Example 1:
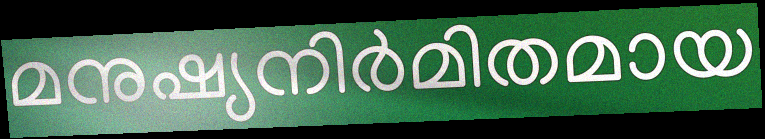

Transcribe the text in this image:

മനുഷ്യനിർമിതമായ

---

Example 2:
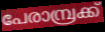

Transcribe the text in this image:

പേരാമ്പ്രക്ക്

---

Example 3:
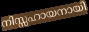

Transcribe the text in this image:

നിസ്സഹായനായി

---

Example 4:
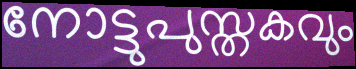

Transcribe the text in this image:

നോട്ടുപുസ്തകവും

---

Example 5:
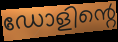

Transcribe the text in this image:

ഡോളിന്റെ